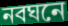
নবঘনে